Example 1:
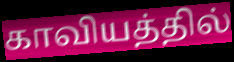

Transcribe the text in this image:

காவியத்தில்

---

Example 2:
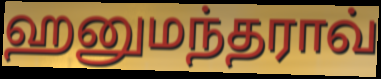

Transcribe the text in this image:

ஹனுமந்தராவ்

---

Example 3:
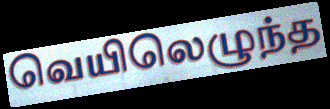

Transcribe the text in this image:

வெயிலெழுந்த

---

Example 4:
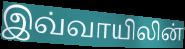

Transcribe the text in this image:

இவ்வாயிலின்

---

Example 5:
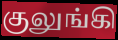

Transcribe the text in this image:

குலுங்கி